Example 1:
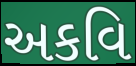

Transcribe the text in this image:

અકવિ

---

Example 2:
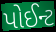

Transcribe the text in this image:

પોઈન્ટ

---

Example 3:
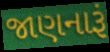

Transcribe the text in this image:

જાણનારૂં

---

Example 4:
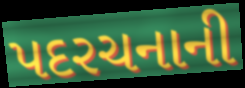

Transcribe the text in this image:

પદરચનાની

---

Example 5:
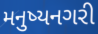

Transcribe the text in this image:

મનુષ્યનગરી